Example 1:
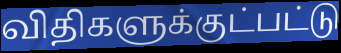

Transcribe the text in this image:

விதிகளுக்குட்பட்டு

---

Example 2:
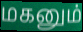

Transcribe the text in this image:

மகனும்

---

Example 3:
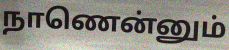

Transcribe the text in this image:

நாணென்னும்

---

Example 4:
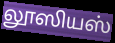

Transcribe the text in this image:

லூஸியஸ்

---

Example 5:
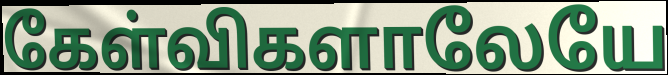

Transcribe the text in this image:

கேள்விகளாலேயே